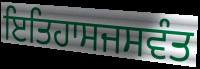
ਇਤਿਹਾਸਜਸਵੰਤ